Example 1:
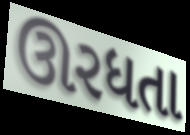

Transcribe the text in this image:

ઊરધતા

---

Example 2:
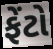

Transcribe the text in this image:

ફેંટો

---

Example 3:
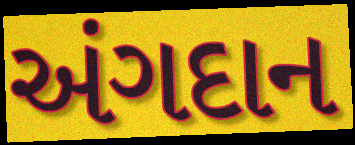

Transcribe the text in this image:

અંગદાન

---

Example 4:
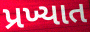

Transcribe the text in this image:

પ્રખ્યાત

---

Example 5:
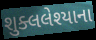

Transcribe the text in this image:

શુક્લલેશ્યાના